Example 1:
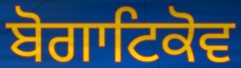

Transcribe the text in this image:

ਬੋਗਾਟਿਕੋਵ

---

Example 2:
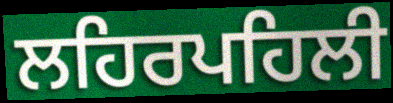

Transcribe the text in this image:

ਲਹਿਰਪਹਿਲੀ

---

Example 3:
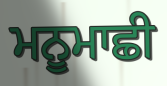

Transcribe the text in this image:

ਮਨੂਮਾਛੀ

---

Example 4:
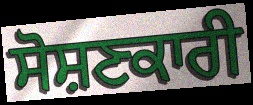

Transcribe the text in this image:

ਸੋਸ਼ਣਕਾਰੀ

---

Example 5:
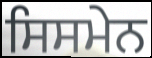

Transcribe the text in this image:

ਸਿਸਮੇਨ